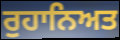
ਰੁਹਾਨਿਅਤ